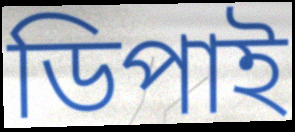
ডিপাই